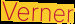
Verner